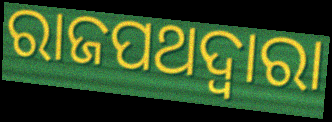
ରାଜପଥଦ୍ୱାରା